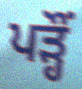
ਪੜ੍ਹੌਂ